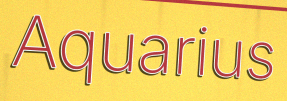
Aquarius